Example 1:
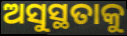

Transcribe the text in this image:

ଅସୁସ୍ଥତାକୁ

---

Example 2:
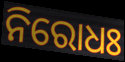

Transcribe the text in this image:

ନିରୋଧଃ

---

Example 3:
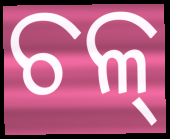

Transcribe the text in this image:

ଚଳ୍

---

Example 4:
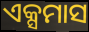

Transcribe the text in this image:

ଏକ୍ସମାସ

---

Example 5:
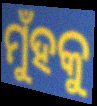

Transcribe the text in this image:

ମୁଁହକୁ